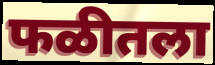
फळीतला